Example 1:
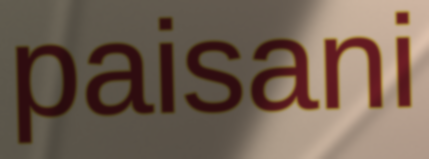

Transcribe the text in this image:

paisani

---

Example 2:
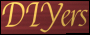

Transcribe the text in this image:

DIYers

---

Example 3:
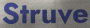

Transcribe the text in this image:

Struve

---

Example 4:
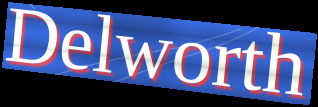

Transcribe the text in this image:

Delworth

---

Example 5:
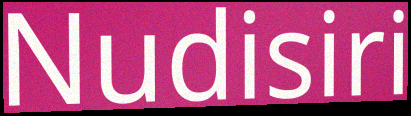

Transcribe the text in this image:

Nudisiri